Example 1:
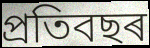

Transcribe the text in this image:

প্ৰতিবছৰ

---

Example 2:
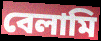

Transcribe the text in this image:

বেলামি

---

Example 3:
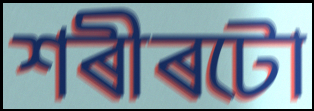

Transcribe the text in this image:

শৰীৰটো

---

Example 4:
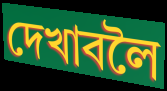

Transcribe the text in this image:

দেখাবলৈ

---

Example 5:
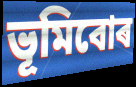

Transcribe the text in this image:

ভূমিবোৰ